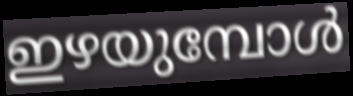
ഇഴയുമ്പോൾ